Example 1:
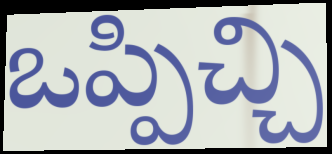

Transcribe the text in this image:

ఒప్పిచ్చి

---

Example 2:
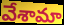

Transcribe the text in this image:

వేశామా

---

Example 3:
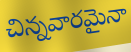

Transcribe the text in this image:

చిన్నవారమైనా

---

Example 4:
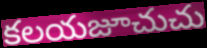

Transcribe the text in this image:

కలయజూచుచు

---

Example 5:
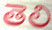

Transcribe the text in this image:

తెలి